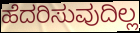
ಹೆದರಿಸುವುದಿಲ್ಲ